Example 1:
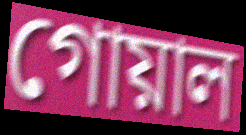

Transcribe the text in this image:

গোয়াল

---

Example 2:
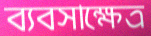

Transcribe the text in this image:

ব্যবসাক্ষেত্র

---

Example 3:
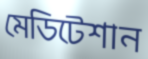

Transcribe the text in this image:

মেডিটেশান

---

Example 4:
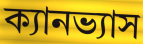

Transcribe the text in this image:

ক্যানভ্যাস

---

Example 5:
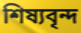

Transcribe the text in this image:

শিষ্যবৃন্দ